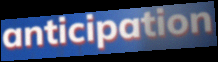
anticipation